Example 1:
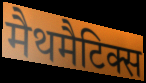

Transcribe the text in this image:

मैथमैटिक्स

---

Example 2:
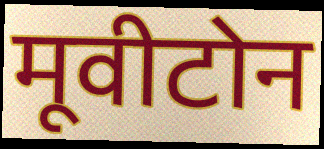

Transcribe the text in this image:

मूवीटोन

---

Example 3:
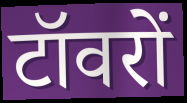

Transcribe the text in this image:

टॉवरों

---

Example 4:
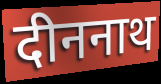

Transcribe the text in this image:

दीननाथ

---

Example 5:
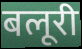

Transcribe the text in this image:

बलूरी